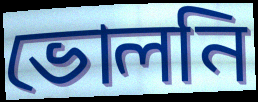
ভোলনি